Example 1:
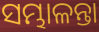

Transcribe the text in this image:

ସମ୍ଭାଳନ୍ତା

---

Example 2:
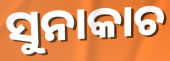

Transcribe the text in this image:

ସୁନାକାଚ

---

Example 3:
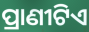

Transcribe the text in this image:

ପ୍ରାଣୀଟିଏ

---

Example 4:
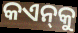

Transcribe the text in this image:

କଏନ୍‌କୁ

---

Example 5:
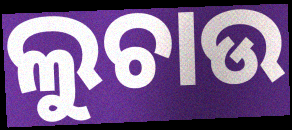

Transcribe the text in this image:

ଲୁଚାଉ